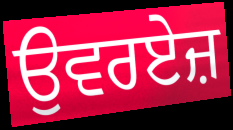
ਉਵਰਏਜ਼